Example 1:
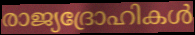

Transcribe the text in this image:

രാജ്യദ്രോഹികൾ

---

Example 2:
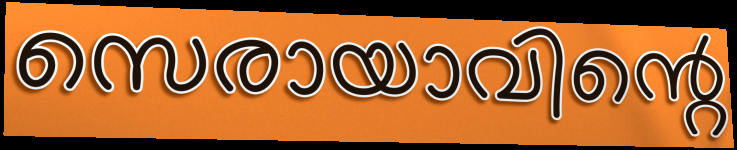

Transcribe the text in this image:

സെരായാവിന്റെ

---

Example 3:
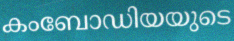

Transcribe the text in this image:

കംബോഡിയയുടെ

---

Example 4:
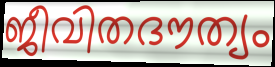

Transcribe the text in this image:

ജീവിതദൗത്യം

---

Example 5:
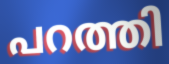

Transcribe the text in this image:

പറത്തി